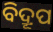
ବିଦ୍ରୂପ